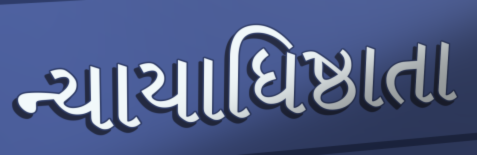
ન્યાયાધિષ્ઠાતા